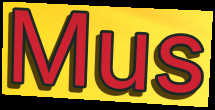
Mus